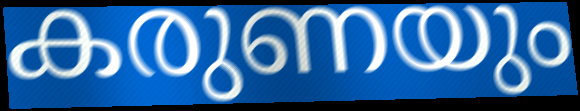
കരുണയും